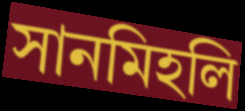
সানমিহলি